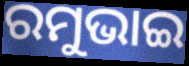
ରମୁଭାଇ